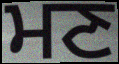
ਮਣ